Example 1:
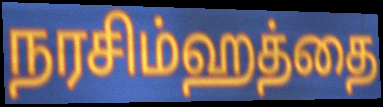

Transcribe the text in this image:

நரசிம்ஹத்தை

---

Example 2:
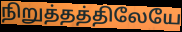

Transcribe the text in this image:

நிறுத்தத்திலேயே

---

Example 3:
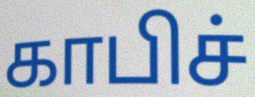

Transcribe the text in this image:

காபிச்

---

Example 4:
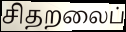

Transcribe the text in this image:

சிதறலைப்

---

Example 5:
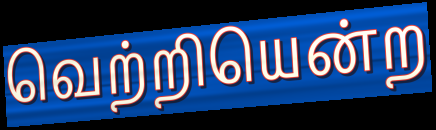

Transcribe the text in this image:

வெற்றியென்ற